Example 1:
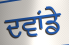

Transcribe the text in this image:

ਦਵਾਂਡੇ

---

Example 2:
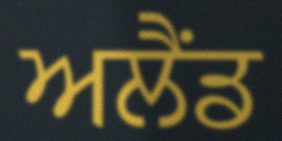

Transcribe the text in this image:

ਅਲੈਂਡ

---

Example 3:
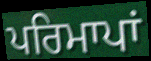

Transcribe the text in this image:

ਪਰਿਮਾਪਾਂ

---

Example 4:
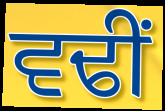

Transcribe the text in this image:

ਵਢੀਂ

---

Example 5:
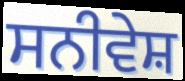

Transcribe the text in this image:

ਸਨੀਵੇਸ਼